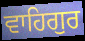
ਵਾਹਿਗੁਰ